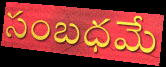
సంబధమే